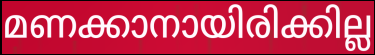
മണക്കാനായിരിക്കില്ല